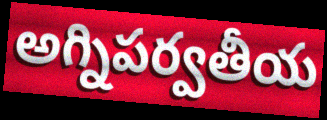
అగ్నిపర్వతీయ